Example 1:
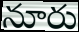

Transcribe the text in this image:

నూరు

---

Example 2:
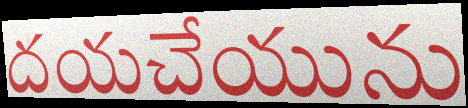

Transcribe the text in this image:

దయచేయును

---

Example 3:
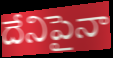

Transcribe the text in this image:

దేనిపైనా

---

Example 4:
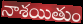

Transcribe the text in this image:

నాశయితుం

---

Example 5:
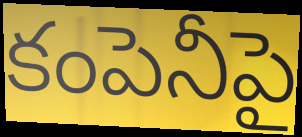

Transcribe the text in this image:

కంపెనీపై